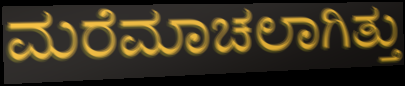
ಮರೆಮಾಚಲಾಗಿತ್ತು